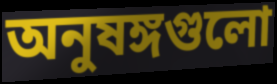
অনুষঙ্গগুলো